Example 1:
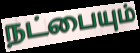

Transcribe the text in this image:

நட்பையும்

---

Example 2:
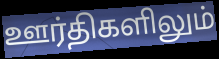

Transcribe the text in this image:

ஊர்திகளிலும்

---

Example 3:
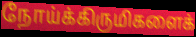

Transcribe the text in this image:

நோய்க்கிருமிகளைக்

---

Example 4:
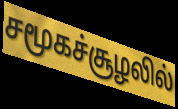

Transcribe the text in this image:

சமூகச்சூழலில்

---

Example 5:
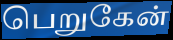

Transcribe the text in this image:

பெறுகேன்